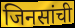
जिनसांची